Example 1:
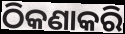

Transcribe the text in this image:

ଠିକଣାକରି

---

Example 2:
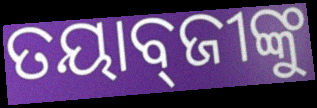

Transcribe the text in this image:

ତୟାବ୍‌ଜୀଙ୍କୁ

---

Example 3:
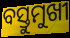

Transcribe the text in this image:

ବସ୍ତୁମୁଖୀ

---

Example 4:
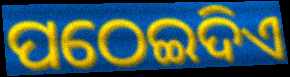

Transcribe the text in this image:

ପଠେଇଦିଏ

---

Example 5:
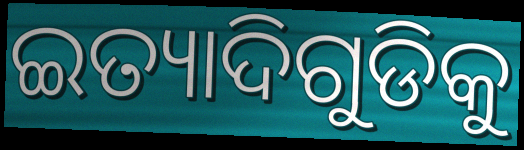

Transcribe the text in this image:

ଇତ୍ୟାଦିଗୁଡିକୁ